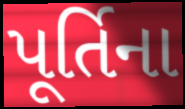
પૂર્તિના